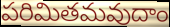
పరిమితమవుదాం